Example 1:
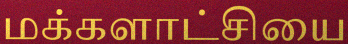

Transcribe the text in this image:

மக்களாட்சியை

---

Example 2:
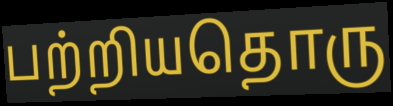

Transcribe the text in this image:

பற்றியதொரு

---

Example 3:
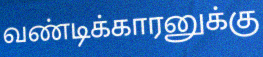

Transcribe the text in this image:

வண்டிக்காரனுக்கு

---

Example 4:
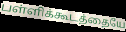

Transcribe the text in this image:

பள்ளிக்கூடத்தையே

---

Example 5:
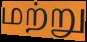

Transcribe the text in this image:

மற்று